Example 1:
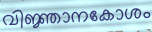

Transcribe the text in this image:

വിജ്ഞാനകോശം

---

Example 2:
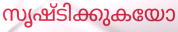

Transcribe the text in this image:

സൃഷ്ടിക്കുകയോ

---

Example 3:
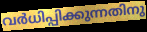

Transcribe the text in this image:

വർധിപ്പിക്കുന്നതിനു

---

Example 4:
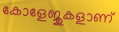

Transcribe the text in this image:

കോളേജുകളാണ്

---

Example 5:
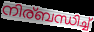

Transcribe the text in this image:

നിര്ബന്ധിച്ച്